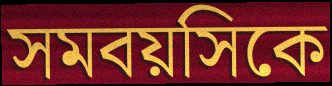
সমবয়সিকে